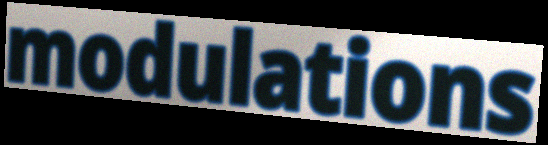
modulations